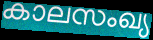
കാലസംഖ്യ